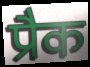
प्रैक